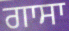
ਗਾਸਾ